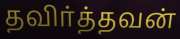
தவிர்த்தவன்